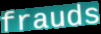
frauds